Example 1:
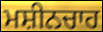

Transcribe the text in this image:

ਮਸ਼ੀਨਚਾਹ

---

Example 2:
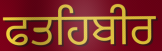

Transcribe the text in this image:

ਫਤਹਿਬੀਰ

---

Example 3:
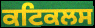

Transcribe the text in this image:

ਕਟਿਕਲਸ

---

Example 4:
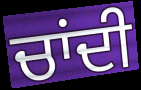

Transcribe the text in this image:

ਚਾਂਦੀ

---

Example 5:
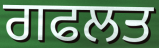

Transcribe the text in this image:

ਗਫਲਤ